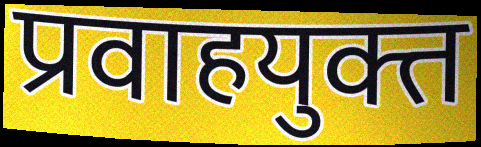
प्रवाहयुक्त